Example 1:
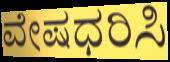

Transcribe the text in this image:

ವೇಷಧರಿಸಿ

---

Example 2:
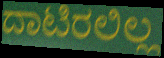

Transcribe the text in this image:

ದಾಟಿರಲಿಲ್ಲ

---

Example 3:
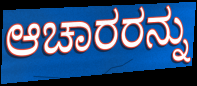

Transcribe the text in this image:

ಆಚಾರರನ್ನು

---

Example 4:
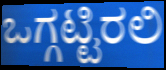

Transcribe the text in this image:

ಒಗ್ಗಟ್ಟಿರಲಿ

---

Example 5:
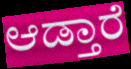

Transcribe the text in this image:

ಆಡ್ತಾರೆ